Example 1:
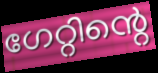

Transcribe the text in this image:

ഗേറ്റിന്റെ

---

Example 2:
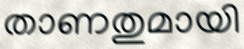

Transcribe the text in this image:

താണതുമായി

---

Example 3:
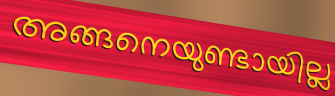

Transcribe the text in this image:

അങ്ങനെയുണ്ടായില്ല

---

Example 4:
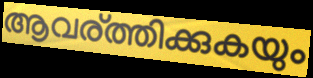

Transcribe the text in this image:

ആവര്ത്തിക്കുകയും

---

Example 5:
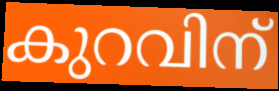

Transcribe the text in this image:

കുറവിന്